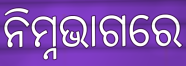
ନିମ୍ନଭାଗରେ